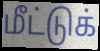
மீட்டுக்